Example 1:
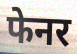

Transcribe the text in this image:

फेनर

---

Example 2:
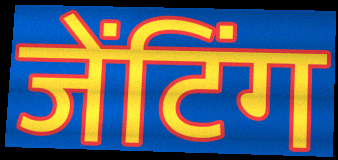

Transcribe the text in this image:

जेंटिंग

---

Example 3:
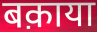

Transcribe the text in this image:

बक़ाया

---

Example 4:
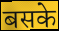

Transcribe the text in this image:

बसके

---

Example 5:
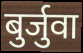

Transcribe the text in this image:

बुर्जुवा